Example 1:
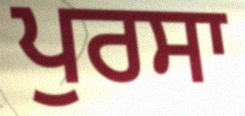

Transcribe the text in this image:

ਪੁਰਸਾ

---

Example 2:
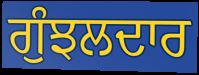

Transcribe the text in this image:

ਗੁੰਝਲਦਾਰ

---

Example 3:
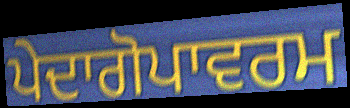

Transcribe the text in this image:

ਪੇਦਾਗੋਪਾਵਰਮ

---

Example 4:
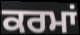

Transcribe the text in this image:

ਕਰਮਾਂ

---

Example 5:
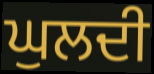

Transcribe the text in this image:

ਘੁਲਦੀ